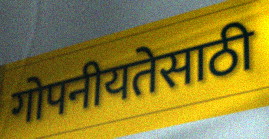
गोपनीयतेसाठी